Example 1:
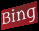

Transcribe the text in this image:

Bing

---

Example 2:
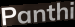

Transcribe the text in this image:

Panthi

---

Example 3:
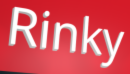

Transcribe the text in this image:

Rinky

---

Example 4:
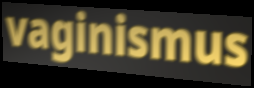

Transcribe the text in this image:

vaginismus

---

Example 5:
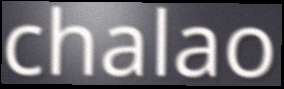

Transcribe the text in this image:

chalao